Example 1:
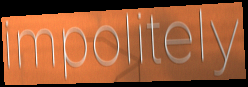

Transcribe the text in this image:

impolitely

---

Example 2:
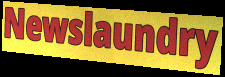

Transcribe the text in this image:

Newslaundry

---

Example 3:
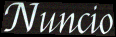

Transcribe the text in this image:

Nuncio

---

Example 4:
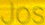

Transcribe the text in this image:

Jos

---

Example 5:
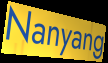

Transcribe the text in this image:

Nanyang